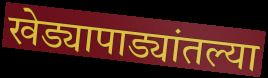
खेड्यापाड्यांतल्या